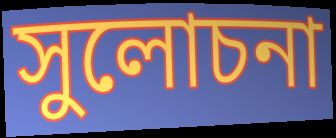
সুলোচনা